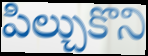
పిల్చుకొని